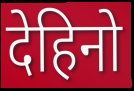
देहिनो